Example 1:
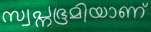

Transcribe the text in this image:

സ്വപ്നഭൂമിയാണ്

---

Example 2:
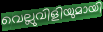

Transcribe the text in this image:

വെല്ലുവിളിയുമായി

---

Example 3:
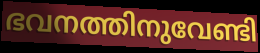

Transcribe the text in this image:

ഭവനത്തിനുവേണ്ടി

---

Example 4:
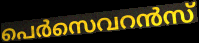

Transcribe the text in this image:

പെർസെവറൻസ്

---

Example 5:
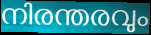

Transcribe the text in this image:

നിരന്തരവും